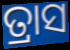
ତ୍ରାସ